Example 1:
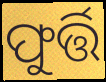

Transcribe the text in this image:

ଫୁର୍ତ୍ତି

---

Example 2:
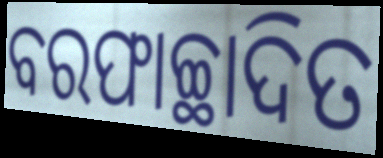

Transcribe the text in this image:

ବରଫାଚ୍ଛାଦିତ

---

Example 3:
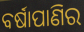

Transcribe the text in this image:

ବର୍ଷାପାଣିର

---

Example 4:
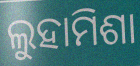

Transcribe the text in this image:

ଲୁହାମିଶା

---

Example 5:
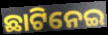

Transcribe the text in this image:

ଛାଟିନେଇ